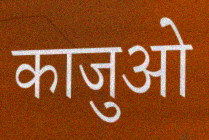
काजुओ